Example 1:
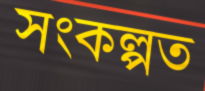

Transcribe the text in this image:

সংকল্পত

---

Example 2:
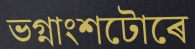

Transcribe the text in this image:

ভগ্নাংশটোৰে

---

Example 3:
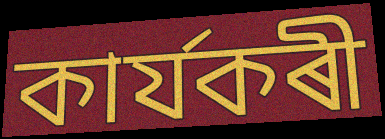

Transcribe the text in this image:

কাৰ্যকৰী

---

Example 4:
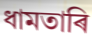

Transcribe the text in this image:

ধামতাৰি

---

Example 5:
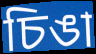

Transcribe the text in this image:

চিঙা